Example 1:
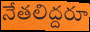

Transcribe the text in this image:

నేతలిద్దరూ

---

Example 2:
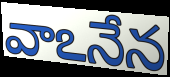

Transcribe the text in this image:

వాఽనేన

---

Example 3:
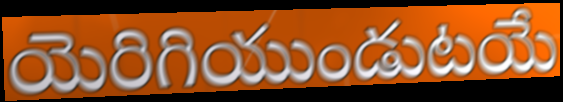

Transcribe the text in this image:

యెరిగియుండుటయే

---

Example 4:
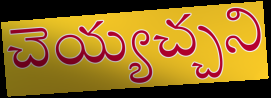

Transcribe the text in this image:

చెయ్యచ్చని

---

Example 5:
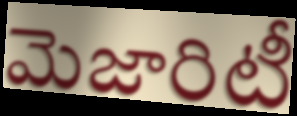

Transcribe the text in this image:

మెజారిటీ